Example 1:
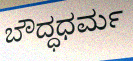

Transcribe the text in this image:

ಬೌದ್ಧಧರ್ಮ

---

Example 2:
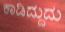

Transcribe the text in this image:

ಕಾಡಿದ್ದುದು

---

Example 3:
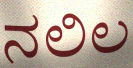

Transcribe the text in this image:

ನಲಿಲ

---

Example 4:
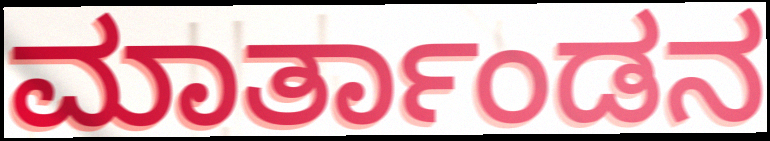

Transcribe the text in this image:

ಮಾರ್ತಾಂಡನ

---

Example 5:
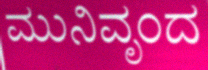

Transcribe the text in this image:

ಮುನಿವೃಂದ